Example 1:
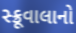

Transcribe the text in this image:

સ્ક્રૂવાલાનો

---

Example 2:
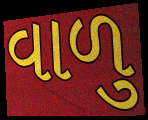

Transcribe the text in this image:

વાળુ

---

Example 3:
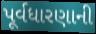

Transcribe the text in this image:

પૂર્વધારણાની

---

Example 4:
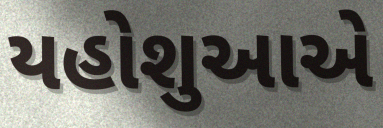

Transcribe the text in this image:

યહોશુઆએ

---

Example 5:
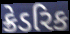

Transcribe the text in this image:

ક્રેડરિક